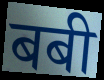
बबी